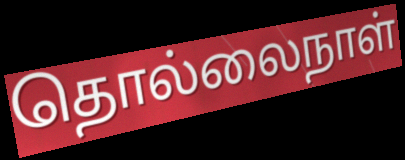
தொல்லைநாள்